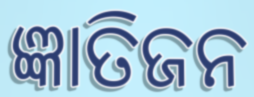
ଜ୍ଞାତିଜନ